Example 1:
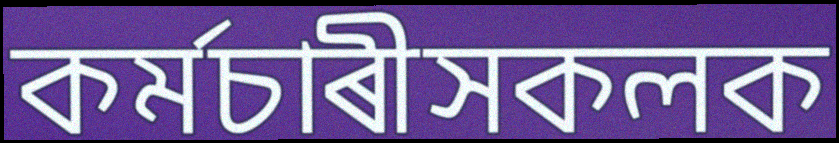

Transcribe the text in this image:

কৰ্মচাৰীসকলক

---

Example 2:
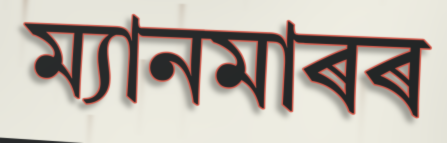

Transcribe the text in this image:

ম্যানমাৰৰ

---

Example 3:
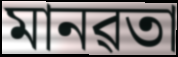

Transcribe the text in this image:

মানৱতা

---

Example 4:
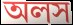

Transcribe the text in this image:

অলস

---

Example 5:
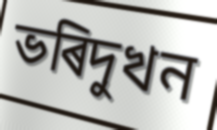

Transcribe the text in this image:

ভৰিদুখন